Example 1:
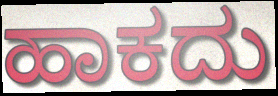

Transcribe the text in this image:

ಹಾಕದು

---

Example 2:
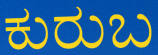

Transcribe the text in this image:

ಕುರುಬ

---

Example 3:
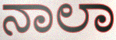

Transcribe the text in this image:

ನಾಲಾ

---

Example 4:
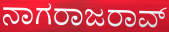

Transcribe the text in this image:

ನಾಗರಾಜರಾವ್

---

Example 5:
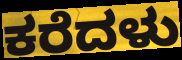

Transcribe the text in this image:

ಕರೆದಳು